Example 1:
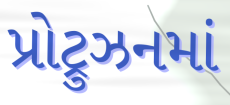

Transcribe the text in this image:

પ્રોટ્રુઝનમાં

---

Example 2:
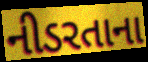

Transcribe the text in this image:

નીડરતાના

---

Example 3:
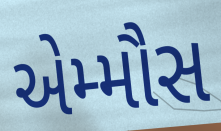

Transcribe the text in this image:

એમ્મૌસ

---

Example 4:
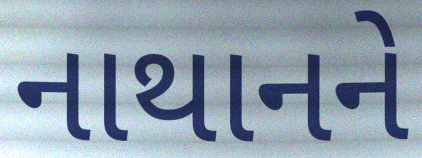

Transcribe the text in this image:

નાથાનને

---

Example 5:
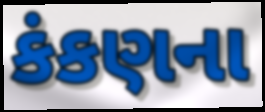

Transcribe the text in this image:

કંકણના